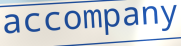
accompany